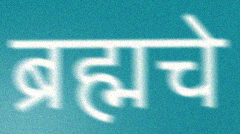
ब्रह्मचे